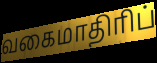
வகைமாதிரிப்